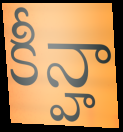
కీన్హా